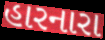
હારનારા